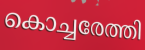
കൊച്ചരേത്തി